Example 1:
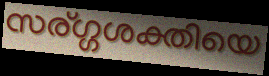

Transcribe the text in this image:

സര്ഗ്ഗശക്തിയെ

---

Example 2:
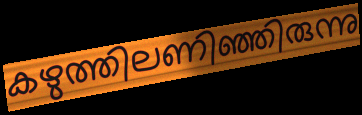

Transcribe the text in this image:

കഴുത്തിലണിഞ്ഞിരുന്നു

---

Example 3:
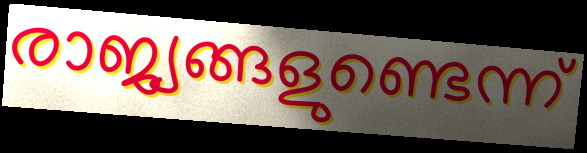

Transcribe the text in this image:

രാജ്യങ്ങളുണ്ടെന്ന്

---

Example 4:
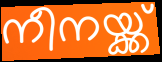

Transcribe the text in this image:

നീനയ്ക്ക്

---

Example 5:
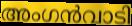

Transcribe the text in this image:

അംഗൻവാടി